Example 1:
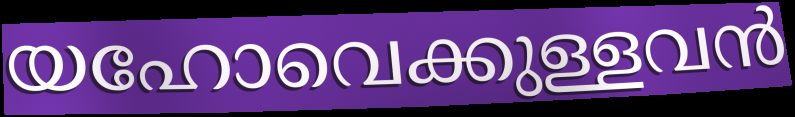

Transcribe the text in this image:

യഹോവെക്കുള്ളവൻ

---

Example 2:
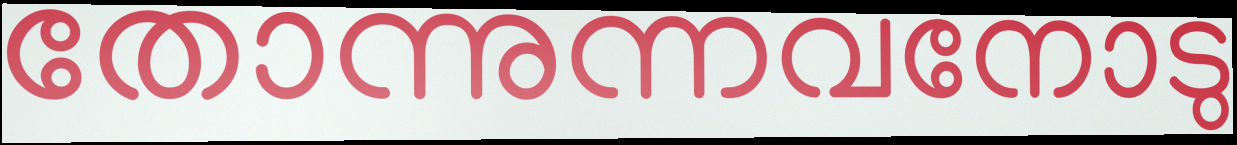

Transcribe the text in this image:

തോന്നുന്നവനോടു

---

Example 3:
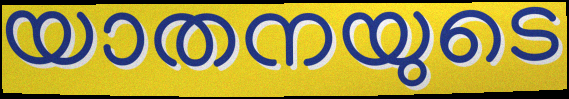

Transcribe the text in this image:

യാതനയുടെ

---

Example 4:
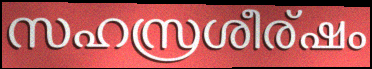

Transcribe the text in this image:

സഹസ്രശീര്ഷം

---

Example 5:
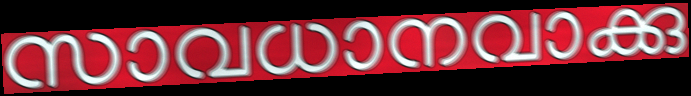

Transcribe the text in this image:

സാവധാനവാക്കു